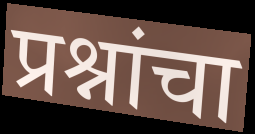
प्रश्नांचा